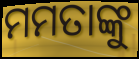
ମମତାଙ୍କୁ